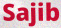
Sajib